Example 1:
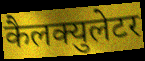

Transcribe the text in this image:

कैलक्युलेटर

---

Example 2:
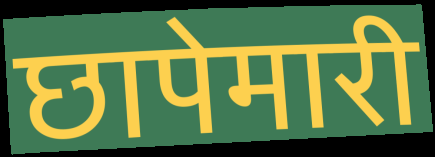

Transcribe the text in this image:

छापेमारी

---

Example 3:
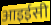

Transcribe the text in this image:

आइईसी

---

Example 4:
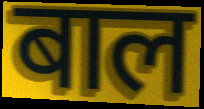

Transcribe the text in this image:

बाल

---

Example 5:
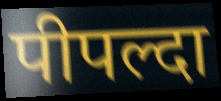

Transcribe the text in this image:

पीपल्दा